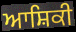
ਆਸ਼ਿਕੀ